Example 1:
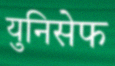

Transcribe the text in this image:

युनिसेफ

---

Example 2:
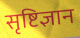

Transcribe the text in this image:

सृष्टिज्ञान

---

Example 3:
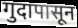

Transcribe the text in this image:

गुदापासून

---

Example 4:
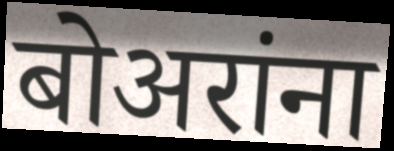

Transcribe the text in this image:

बोअरांना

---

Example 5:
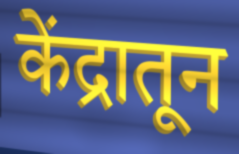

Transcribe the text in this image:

केंद्रातून